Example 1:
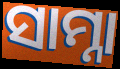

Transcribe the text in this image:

ସାମ୍ନା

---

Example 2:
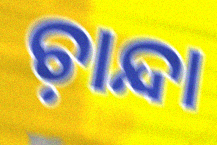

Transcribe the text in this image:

ଚ଼ାନ୍ଦା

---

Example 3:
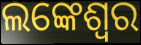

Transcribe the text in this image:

ଲଙ୍କେଶ୍ବର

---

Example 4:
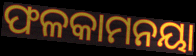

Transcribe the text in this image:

ଫଳକାମନୟା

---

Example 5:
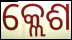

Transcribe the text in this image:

କ୍ଲେଶ